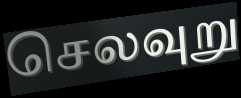
செலவுறு